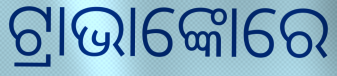
ଟ୍ରାଭାଙ୍କୋରେ